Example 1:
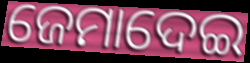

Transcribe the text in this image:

ଜେମାଦେଇ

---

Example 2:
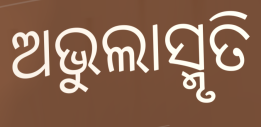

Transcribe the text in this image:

ଅଭୁଲାସ୍ମୃତି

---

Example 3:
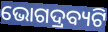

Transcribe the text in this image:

ଭୋଗଦ୍ରବ୍ୟଟି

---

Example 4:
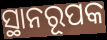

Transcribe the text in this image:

ସ୍ଥାନରୂପକ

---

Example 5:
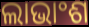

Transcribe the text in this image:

ଲାଭାଂଶ